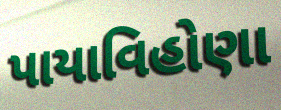
પાયાવિહોણા